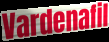
Vardenafil